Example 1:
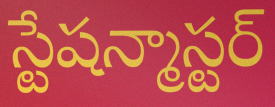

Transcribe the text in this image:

స్టేషన్మాస్టర్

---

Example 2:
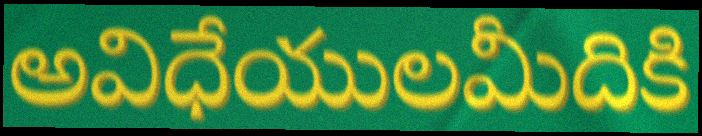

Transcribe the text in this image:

అవిధేయులమీదికి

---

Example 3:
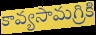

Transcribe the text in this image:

కావ్యసామగ్రికి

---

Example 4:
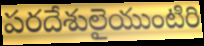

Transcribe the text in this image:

పరదేశులైయుంటిరి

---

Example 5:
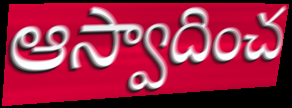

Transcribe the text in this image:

ఆస్వాదించ